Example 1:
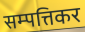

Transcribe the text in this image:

सम्पत्तिकर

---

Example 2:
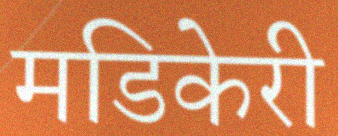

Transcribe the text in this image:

मडिकेरी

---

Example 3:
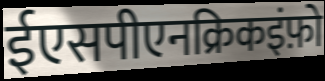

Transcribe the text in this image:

ईएसपीएनक्रिकइंफ़ो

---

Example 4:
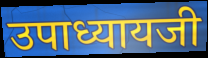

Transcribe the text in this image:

उपाध्यायजी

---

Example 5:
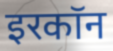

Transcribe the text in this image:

इरकॉन